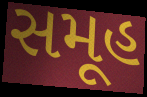
સમૂહ